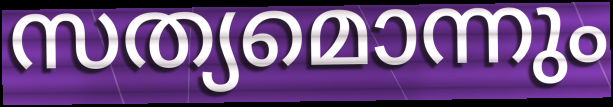
സത്യമൊന്നും